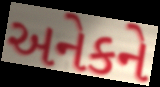
અનેકને